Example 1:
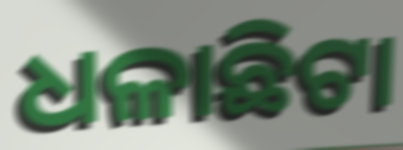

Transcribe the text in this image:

ଧଳାଛିଟା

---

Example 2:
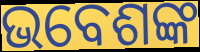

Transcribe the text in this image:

ଭବେଶଙ୍କ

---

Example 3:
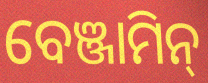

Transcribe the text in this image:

ବେଞ୍ଜାମିନ୍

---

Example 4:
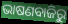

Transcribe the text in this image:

ଭାଷଣବାଜିରୁ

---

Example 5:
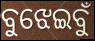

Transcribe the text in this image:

ବୁଝେଇବୁଁ